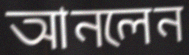
আনলেন